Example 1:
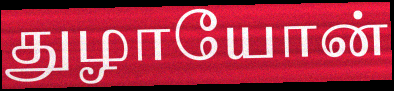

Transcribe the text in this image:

துழாயோன்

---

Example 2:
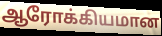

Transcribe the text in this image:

ஆரோக்கியமான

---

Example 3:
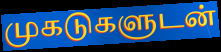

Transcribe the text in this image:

முகடுகளுடன்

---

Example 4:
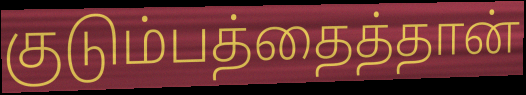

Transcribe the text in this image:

குடும்பத்தைத்தான்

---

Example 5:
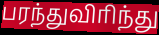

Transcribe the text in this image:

பரந்துவிரிந்து